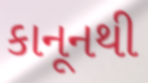
કાનૂનથી